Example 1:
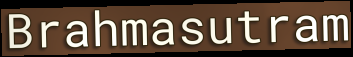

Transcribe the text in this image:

Brahmasutram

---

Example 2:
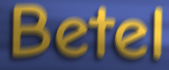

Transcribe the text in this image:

Betel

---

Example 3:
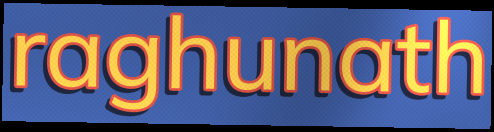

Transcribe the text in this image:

raghunath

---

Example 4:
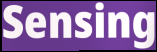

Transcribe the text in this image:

Sensing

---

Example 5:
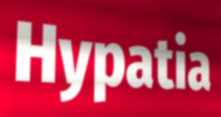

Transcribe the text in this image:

Hypatia